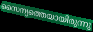
സൈന്യത്തെയായിരുന്നു